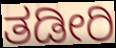
ತಡೀರಿ